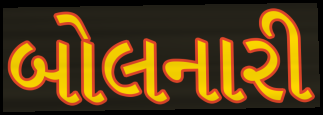
બોલનારી